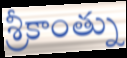
శ్రీకాంత్ను